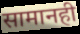
सामानही